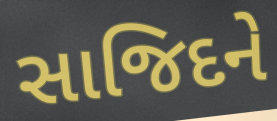
સાજિદને